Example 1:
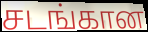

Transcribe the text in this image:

சடங்கான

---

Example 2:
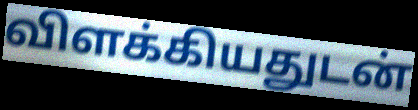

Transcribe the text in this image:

விளக்கியதுடன்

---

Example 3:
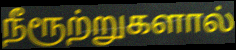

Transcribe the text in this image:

நீரூற்றுகளால்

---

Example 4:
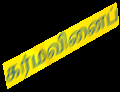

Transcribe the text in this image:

கர்மவினைப்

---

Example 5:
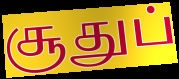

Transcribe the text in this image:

சூதுப்